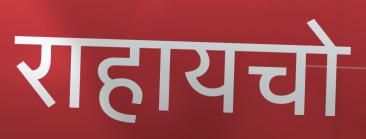
राहायचो